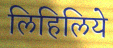
लिहिलिये